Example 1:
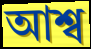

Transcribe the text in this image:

আশ্ব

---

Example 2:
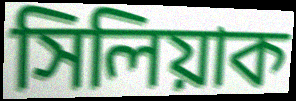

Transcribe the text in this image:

সিলিয়াক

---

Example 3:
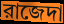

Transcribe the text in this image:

রাজেদা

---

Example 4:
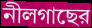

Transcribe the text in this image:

নীলগাছের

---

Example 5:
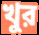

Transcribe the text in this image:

খুর